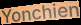
Yonchien